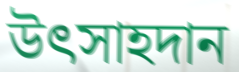
উৎসাহদান